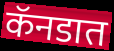
कॅनडात